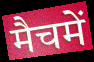
मैचमें